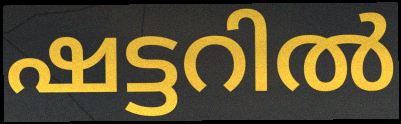
ഷട്ടറിൽ